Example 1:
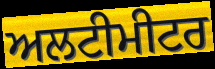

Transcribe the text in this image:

ਅਲਟੀਮੀਟਰ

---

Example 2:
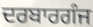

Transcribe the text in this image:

ਦਰਬਾਰਗੰਜ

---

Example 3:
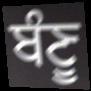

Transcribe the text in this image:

ਬੰਣੂ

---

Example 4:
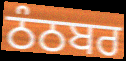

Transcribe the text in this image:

ਠੰਠਬਰ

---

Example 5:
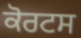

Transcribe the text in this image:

ਕੋਰਟਸ